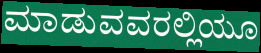
ಮಾಡುವವರಲ್ಲಿಯೂ